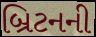
બ્રિટનની